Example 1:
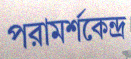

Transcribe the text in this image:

পরামর্শকেন্দ্র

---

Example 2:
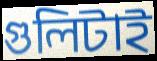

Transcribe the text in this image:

গুলিটাই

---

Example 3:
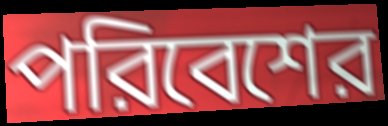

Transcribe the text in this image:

পরিবেশের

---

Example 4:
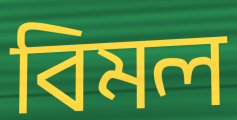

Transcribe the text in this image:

বিমল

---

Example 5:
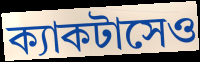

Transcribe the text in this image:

ক্যাকটাসেও